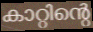
കാറ്റിന്റെ